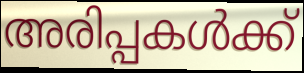
അരിപ്പകൾക്ക്